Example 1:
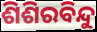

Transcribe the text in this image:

ଶିଶିରବିନ୍ଦୁ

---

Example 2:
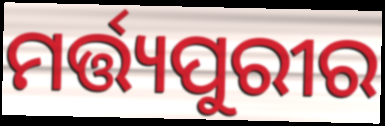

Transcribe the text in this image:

ମର୍ତ୍ତ୍ୟପୁରୀର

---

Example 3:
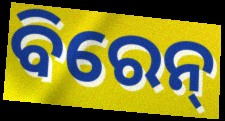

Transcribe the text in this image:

ବିରେନ୍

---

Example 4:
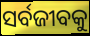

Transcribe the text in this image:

ସର୍ବଜୀବକୁ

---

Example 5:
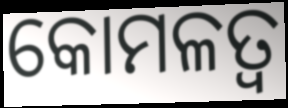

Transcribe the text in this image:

କୋମଳତ୍ୱ